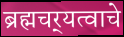
ब्रह्मचर्यत्वाचे